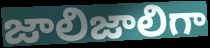
జాలిజాలిగా